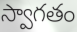
స్వాగతం